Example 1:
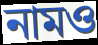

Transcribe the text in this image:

নামও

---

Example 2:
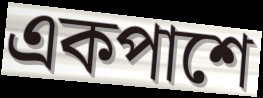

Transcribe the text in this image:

একপাশে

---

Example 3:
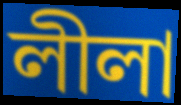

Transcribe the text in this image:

লীলা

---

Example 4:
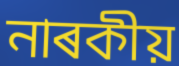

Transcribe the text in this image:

নাৰকীয়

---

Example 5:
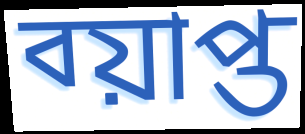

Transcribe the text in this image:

ব্য়াপ্ত